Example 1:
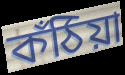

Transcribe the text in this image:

কঁঠিয়া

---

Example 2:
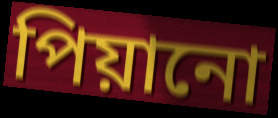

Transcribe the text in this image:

পিয়ানো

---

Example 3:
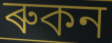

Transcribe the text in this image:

ৰুকন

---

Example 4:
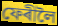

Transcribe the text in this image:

ফেৰীলৈ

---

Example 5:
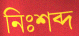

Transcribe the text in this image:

নিঃশব্দ